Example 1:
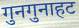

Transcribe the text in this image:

गुनगुनाहट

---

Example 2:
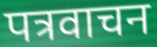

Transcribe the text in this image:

पत्रवाचन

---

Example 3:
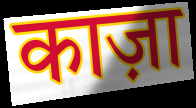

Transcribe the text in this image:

काज़ा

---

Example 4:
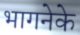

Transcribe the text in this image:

भागनेके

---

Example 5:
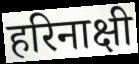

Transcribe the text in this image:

हरिनाक्षी